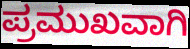
ಪ್ರಮುಖವಾಗಿ